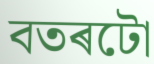
বতৰটো